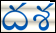
దశ